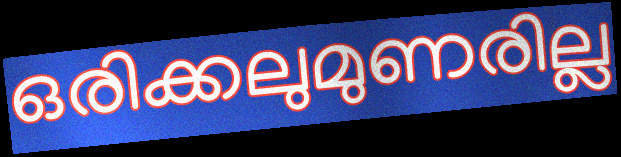
ഒരിക്കലുമുണരില്ല